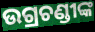
ଉଗ୍ରଚଣ୍ଡୀଙ୍କ